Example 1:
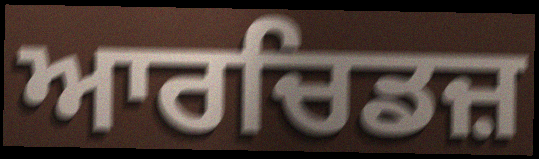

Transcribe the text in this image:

ਆਰਚਿਡਜ਼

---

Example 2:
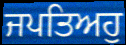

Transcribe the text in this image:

ਜਪਤਿਅਹੁ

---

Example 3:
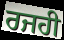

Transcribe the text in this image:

ਰਜਹੀ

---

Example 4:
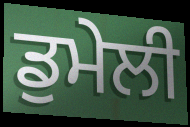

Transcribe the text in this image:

ਡੁਮੇਲੀ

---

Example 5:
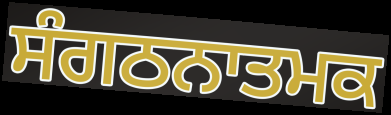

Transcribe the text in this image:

ਸੰਗਠਨਾਤਮਕ